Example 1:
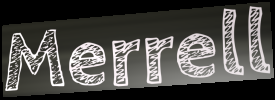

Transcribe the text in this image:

Merrell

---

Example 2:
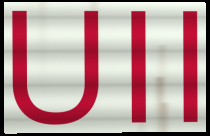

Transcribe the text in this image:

UII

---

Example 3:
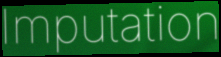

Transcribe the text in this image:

Imputation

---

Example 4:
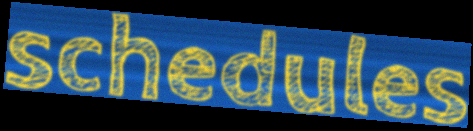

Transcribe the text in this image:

schedules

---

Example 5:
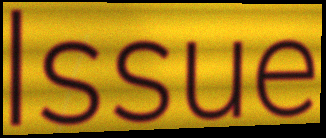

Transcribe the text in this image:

Issue